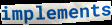
implements